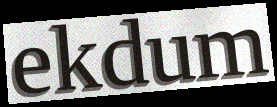
ekdum